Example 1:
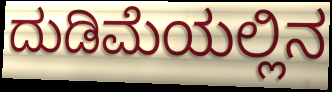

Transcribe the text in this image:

ದುಡಿಮೆಯಲ್ಲಿನ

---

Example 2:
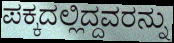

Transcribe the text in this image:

ಪಕ್ಕದಲ್ಲಿದ್ದವರನ್ನು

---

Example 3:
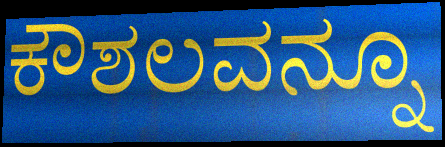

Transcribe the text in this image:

ಕೌಶಲವನ್ನೂ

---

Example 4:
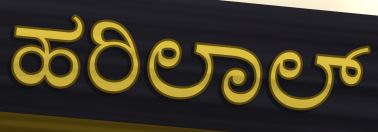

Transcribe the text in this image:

ಹರಿಲಾಲ್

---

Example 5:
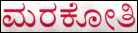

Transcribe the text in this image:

ಮರಕೋತಿ